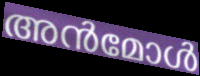
അൻമോൾ